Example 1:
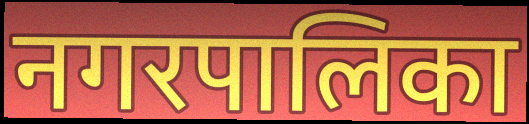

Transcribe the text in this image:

नगरपालिका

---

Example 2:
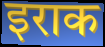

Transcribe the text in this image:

इराक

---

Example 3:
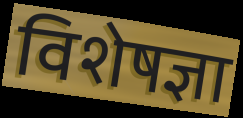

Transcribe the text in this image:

विशेषज्ञा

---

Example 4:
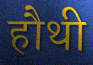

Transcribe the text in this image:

हौथी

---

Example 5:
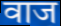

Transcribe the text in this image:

वाज